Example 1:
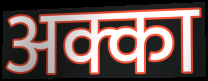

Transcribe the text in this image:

अक्का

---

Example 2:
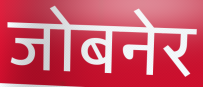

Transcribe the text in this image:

जोबनेर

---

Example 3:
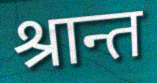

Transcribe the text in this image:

श्रान्त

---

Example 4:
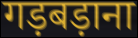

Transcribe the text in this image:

गड़बड़ाना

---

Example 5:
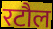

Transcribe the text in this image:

रटौल